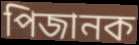
পিজানক